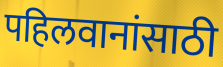
पहिलवानांसाठी